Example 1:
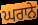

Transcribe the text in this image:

ਘਰਾਨੇ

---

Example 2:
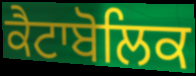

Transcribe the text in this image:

ਕੈਟਾਬੋਲਿਕ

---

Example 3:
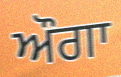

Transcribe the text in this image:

ਔਗਾ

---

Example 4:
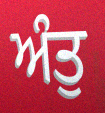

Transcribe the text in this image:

ਅੰਤੁ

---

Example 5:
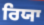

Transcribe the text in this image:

ਰਿਯਾ